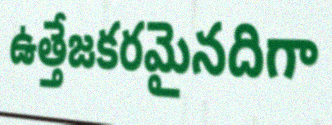
ఉత్తేజకరమైనదిగా